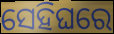
ସେହିଘରେ